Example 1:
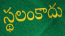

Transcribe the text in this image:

స్థలంకాదు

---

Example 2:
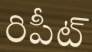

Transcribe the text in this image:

రిపీట్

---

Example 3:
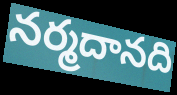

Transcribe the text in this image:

నర్మదానది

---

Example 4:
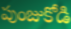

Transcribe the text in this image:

పుంజుకోడి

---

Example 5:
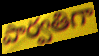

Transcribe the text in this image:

పార్వతిగా